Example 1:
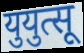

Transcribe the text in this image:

युयुत्सू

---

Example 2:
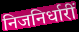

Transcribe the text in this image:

निजनिर्धारीं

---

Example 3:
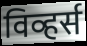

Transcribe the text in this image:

विव्हर्स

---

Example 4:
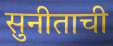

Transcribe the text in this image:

सुनीताची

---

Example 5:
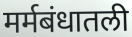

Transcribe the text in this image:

मर्मबंधातली